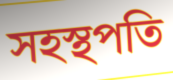
সহস্থপতি